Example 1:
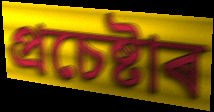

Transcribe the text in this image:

প্ৰচেষ্টাৰ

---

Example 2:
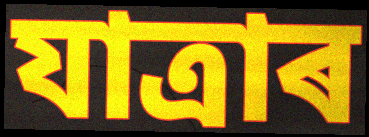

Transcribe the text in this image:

যাত্ৰাৰ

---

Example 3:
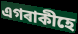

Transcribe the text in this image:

এগৰাকীহে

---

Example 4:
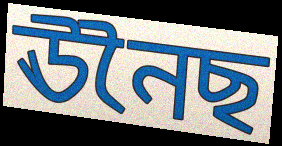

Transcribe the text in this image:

ঊনৈছ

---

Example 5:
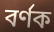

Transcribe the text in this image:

বৰ্ণক